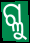
ଗ୍ଳୁ